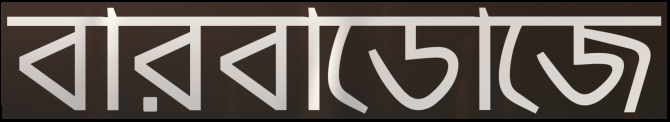
বারবাডোজে